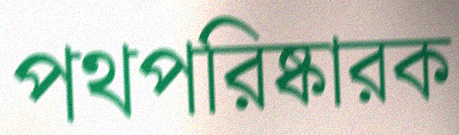
পথপরিষ্কারক